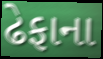
ઢેફાના